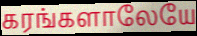
கரங்களாலேயே